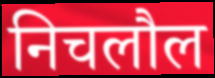
निचलौल